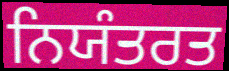
ਨਿਯੰਤਰਤ